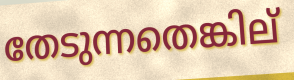
തേടുന്നതെങ്കില്